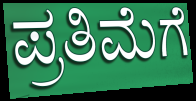
ಪ್ರತಿಮೆಗೆ